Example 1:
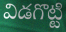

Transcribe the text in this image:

విడగొట్టి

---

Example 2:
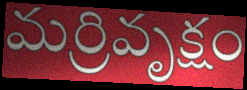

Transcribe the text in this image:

మర్రివృక్షం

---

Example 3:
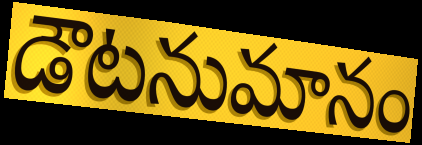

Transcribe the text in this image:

డౌటనుమానం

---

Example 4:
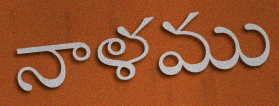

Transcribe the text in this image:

నాళము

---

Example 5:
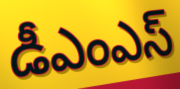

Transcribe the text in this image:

డీఎంఎస్